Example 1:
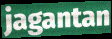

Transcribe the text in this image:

jagantan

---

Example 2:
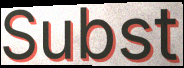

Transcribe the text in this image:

Subst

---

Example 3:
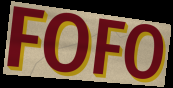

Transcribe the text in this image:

FOFO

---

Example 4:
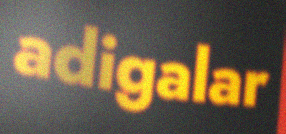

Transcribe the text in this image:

adigalar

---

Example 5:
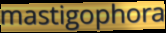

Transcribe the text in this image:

mastigophora